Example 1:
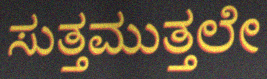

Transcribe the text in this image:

ಸುತ್ತಮುತ್ತಲೇ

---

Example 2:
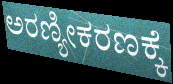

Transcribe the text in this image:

ಅರಣ್ಯೀಕರಣಕ್ಕೆ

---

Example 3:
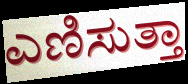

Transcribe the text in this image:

ಎಣಿಸುತ್ತಾ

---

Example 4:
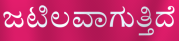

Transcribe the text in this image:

ಜಟಿಲವಾಗುತ್ತಿದೆ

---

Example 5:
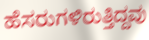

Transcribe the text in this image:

ಹೆಸರುಗಳಿರುತ್ತಿದ್ದವು